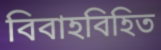
বিবাহবিহিত